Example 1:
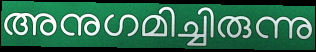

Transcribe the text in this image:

അനുഗമിച്ചിരുന്നു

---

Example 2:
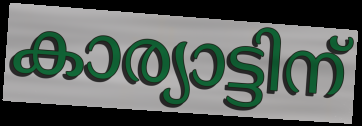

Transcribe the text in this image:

കാര്യാട്ടിന്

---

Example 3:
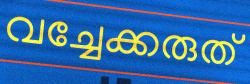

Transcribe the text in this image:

വച്ചേക്കരുത്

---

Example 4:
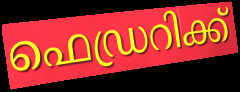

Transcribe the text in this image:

ഫെഡ്രറിക്ക്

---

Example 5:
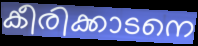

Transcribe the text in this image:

കീരിക്കാടനെ